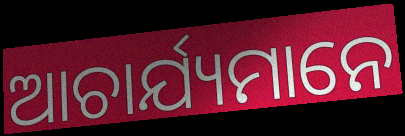
ଆଚାର୍ଯ୍ୟମାନେ